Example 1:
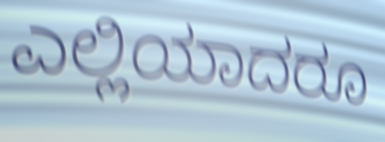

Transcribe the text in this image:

ಎಲ್ಲಿಯಾದರೂ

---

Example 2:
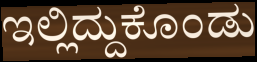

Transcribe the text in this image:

ಇಲ್ಲಿದ್ದುಕೊಂಡು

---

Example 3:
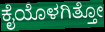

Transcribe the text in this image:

ಕೈಯೊಳಗಿತ್ತೋ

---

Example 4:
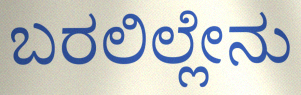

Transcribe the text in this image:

ಬರಲಿಲ್ಲೇನು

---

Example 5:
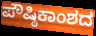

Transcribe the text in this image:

ಪೌಷ್ಠಿಕಾಂಶದ